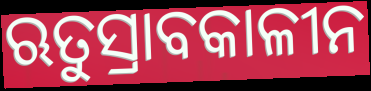
ଋତୁସ୍ରାବକାଳୀନ